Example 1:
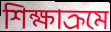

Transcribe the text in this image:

শিক্ষাক্রমে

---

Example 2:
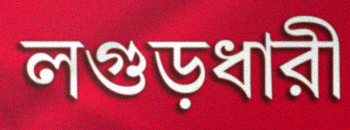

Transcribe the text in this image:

লগুড়ধারী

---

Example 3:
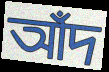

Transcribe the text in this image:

আঁদ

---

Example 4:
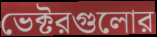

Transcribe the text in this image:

ভেক্টরগুলোর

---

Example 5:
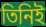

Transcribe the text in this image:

তিনিই